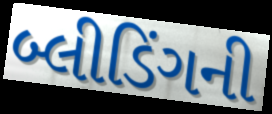
બ્લીડિંગની